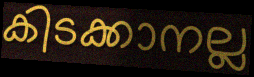
കിടക്കാനല്ല